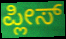
ಪ್ಲೀಸ್